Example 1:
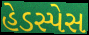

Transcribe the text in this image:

હેડસ્પેસ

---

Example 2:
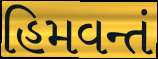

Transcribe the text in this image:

હિમવન્તં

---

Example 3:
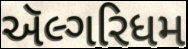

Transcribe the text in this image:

ઍલ્ગરિધમ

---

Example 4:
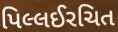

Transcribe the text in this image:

પિલ્લઈરચિત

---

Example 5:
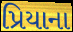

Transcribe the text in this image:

પ્રિયાના